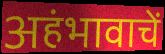
अहंभावाचें